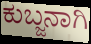
ಕುಬ್ಜನಾಗಿ